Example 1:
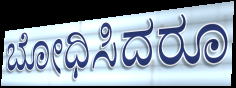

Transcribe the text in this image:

ಬೋಧಿಸಿದರೂ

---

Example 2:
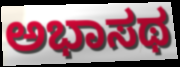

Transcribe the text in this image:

ಅಭಾಸಥ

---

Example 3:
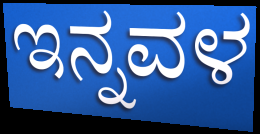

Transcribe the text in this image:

ಇನ್ನವಳ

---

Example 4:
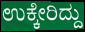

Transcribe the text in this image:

ಉಕ್ಕೇರಿದ್ದು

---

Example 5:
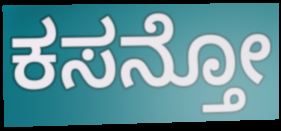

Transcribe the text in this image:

ಕಸನ್ತೋ